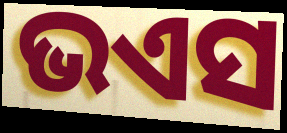
ଭଏସ